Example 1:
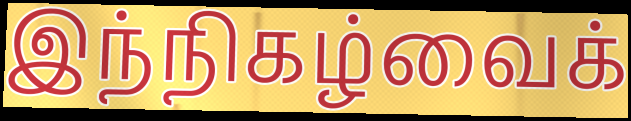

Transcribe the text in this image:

இந்நிகழ்வைக்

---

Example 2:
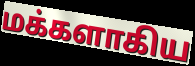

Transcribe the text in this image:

மக்களாகிய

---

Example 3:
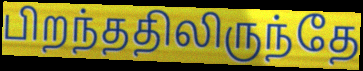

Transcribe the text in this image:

பிறந்ததிலிருந்தே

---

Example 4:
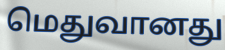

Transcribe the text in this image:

மெதுவானது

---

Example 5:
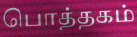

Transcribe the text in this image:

பொத்தகம்